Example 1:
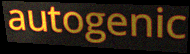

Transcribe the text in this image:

autogenic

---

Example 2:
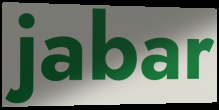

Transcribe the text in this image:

jabar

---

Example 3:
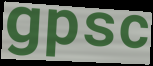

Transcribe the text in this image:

gpsc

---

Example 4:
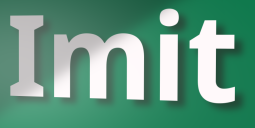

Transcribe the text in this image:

Imit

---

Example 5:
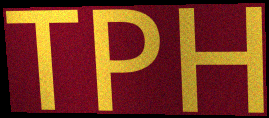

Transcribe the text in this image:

TPH